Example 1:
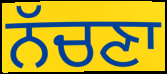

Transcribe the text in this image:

ਨੱਚਣਾ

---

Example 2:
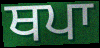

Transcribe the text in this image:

ਥਪਾ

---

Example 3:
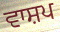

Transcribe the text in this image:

ਵਾਸ਼ਪ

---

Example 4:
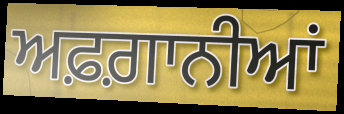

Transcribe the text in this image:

ਅਫ਼ਗ਼ਾਨੀਆਂ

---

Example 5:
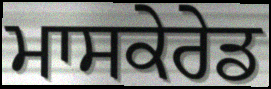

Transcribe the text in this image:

ਮਾਸਕੇਰੇਡ